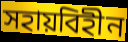
সহায়বিহীন